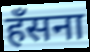
हँसना